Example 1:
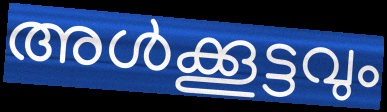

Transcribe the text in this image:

അൾക്കൂട്ടവും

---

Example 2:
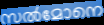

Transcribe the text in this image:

സൽമോനെ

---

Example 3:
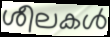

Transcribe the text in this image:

ശീലകൾ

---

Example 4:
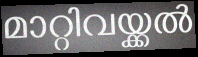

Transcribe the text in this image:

മാറ്റിവയ്ക്കൽ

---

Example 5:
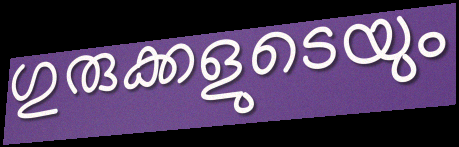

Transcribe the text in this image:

ഗുരുക്കളുടെയും